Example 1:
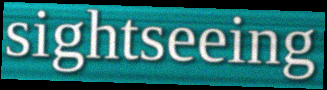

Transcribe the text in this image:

sightseeing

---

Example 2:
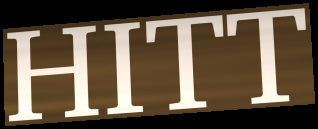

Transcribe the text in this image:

HITT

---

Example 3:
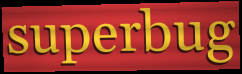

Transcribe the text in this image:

superbug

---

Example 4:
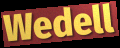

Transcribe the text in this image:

Wedell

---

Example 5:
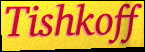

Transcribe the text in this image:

Tishkoff